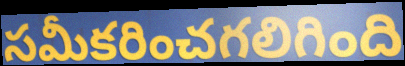
సమీకరించగలిగింది